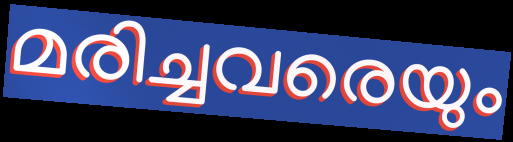
മരിച്ചവരെയും